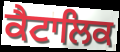
ਕੈਟਾਲਿਕ